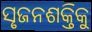
ସୃଜନଶକ୍ତିକୁ